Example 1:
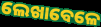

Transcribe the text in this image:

ଲେଖାବେଳେ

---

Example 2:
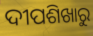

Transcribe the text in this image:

ଦୀପଶିଖାରୁ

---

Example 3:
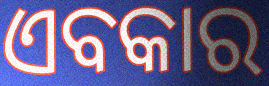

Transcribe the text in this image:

ଏବକାର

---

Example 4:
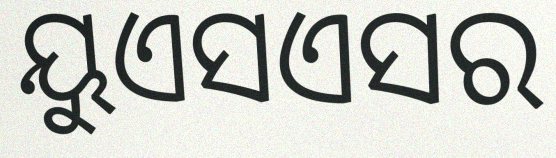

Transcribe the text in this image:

ୟୁଏସଏସର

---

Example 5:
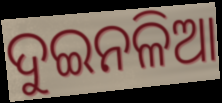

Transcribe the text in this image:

ଦୁଇନଳିଆ